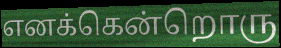
எனக்கென்றொரு